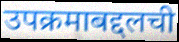
उपक्रमाबद्दलची